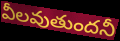
వీలవుతుందనీ